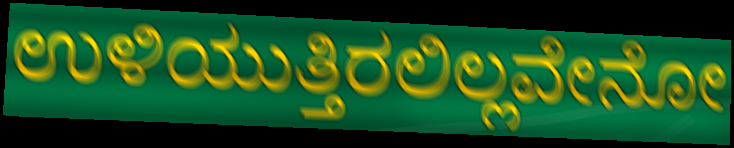
ಉಳಿಯುತ್ತಿರಲಿಲ್ಲವೇನೋ